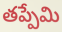
తప్పేమి